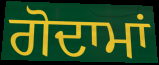
ਗੋਦਾਮਾਂ